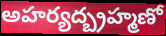
అహర్యద్బ్రహ్మణో